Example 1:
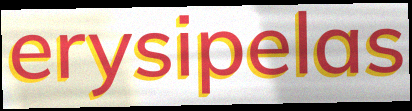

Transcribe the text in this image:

erysipelas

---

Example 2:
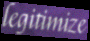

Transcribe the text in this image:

legitimize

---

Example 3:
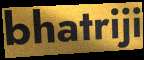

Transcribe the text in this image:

bhatriji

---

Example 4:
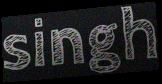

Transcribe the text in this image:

singh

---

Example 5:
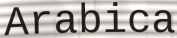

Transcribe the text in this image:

Arabica